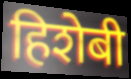
हिशेबी